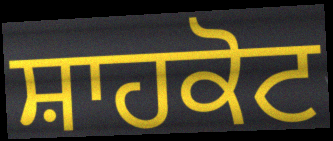
ਸ਼ਾਹਕੋਟ